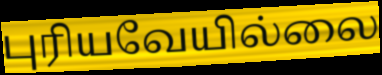
புரியவேயில்லை